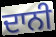
ਦਾਨੀ